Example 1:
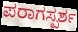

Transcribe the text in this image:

ಪರಾಗಸ್ಪರ್ಶ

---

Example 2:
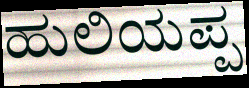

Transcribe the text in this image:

ಹುಲಿಯಪ್ಪ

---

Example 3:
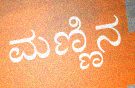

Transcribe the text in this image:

ಮಣ್ಣಿನ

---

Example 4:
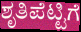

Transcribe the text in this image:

ಶೃತಿಪೆಟ್ಟಿಗೆ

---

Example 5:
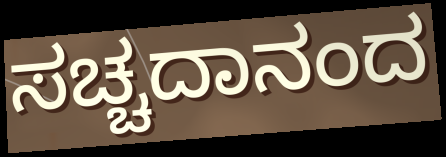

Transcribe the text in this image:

ಸಚ್ಚದಾನಂದ